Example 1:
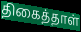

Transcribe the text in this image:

திகைத்தாள்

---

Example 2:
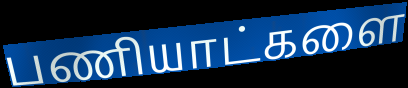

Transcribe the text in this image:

பணியாட்களை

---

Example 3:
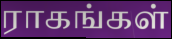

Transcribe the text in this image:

ராகங்கள்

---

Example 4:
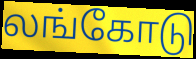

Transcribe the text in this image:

லங்கோடு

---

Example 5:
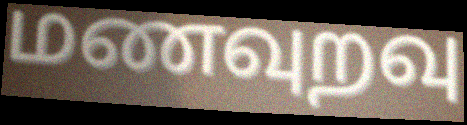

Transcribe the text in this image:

மணவுறவு